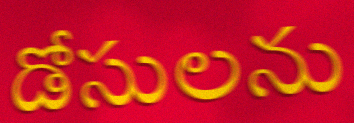
డోసులను